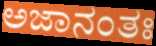
ಅಜಾನಂತಃ